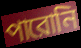
পারোনি